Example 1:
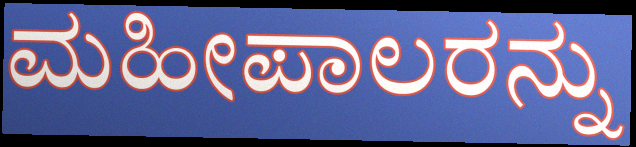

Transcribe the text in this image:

ಮಹೀಪಾಲರನ್ನು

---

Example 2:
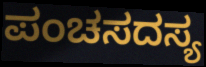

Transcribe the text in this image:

ಪಂಚಸದಸ್ಯ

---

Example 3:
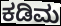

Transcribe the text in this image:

ಕಡಿಮ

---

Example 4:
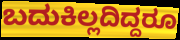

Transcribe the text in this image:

ಬದುಕಿಲ್ಲದಿದ್ದರೂ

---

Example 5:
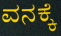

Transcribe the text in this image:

ವನಕ್ಕೆ